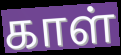
காள்